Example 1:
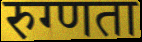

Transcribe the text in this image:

रुग्णता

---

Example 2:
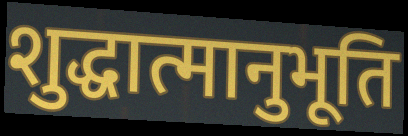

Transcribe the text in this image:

शुद्धात्मानुभूति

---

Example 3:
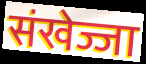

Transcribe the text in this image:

संखेज्जा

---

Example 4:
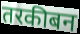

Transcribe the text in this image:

तरकीबन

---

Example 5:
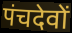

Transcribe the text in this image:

पंचदेवों